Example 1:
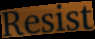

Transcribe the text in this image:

Resist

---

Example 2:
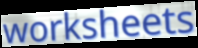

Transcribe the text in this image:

worksheets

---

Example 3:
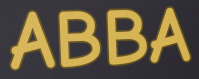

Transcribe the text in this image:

ABBA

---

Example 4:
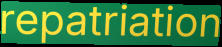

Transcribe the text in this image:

repatriation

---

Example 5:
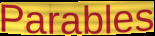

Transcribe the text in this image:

Parables